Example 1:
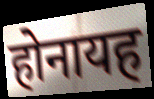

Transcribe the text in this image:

होनायह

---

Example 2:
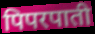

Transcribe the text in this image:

पिपरपाती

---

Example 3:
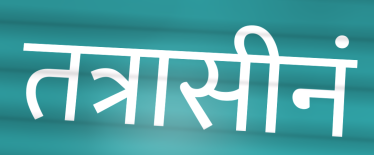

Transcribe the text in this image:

तत्रासीनं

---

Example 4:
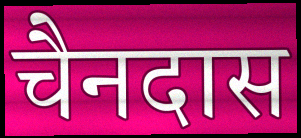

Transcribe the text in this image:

चैनदास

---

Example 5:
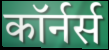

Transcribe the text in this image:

कॉर्नर्स